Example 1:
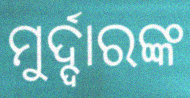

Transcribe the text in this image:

ମୁର୍ଦ୍ଦାରଙ୍କ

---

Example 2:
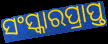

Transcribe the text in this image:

ସଂସ୍କାରପ୍ରାପ୍ତ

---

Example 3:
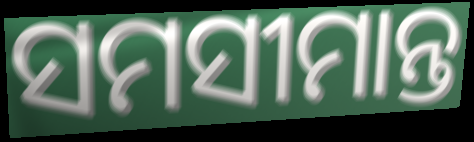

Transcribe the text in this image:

ସମସୀମାନ୍ତ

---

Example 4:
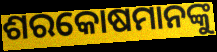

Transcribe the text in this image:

ଶରକୋଷମାନଙ୍କୁ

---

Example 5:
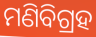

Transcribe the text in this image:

ମଣିବିଗ୍ରହ